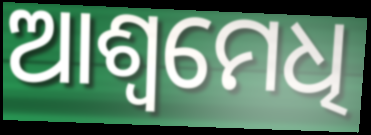
ଆଶ୍ୱମେଧି